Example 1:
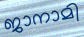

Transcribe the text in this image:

ജാനാമി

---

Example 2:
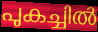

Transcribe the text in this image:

പുകച്ചിൽ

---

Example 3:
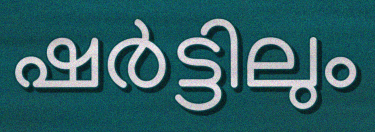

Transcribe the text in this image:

ഷർട്ടിലും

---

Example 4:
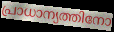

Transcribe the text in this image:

പ്രാധാന്യത്തിനോ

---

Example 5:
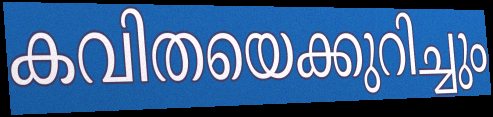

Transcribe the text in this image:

കവിതയെക്കുറിച്ചും